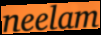
neelam